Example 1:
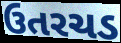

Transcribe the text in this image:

ઉતરચડ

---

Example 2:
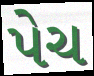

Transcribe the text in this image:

પેચ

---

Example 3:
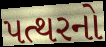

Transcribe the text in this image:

પત્થરનો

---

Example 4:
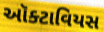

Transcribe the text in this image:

ઑક્ટાવિયસ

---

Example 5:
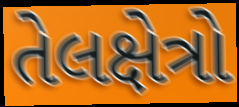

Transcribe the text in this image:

તેલક્ષેત્રો